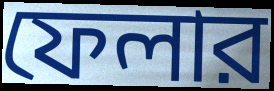
ফেলার